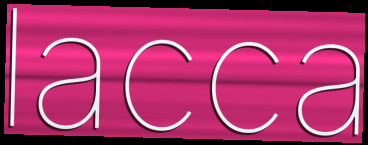
lacca